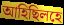
আহিছিলহে